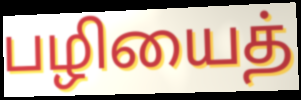
பழியைத்